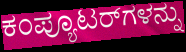
ಕಂಪ್ಯೂಟರ್‌ಗಳನ್ನು